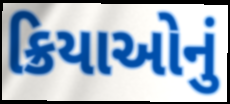
ક્રિયાઓનું